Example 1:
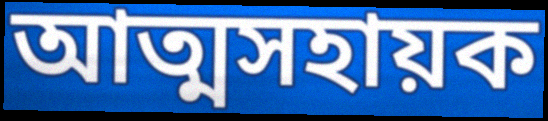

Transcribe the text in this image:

আত্মসহায়ক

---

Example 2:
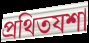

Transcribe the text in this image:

প্ৰথিতযশা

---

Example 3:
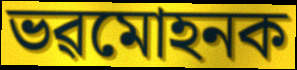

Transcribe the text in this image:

ভৱমোহনক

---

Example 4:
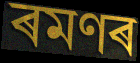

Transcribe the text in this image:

ৰমণৰ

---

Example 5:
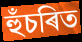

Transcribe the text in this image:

হুঁচৰিত